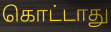
கொட்டாது